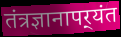
तंत्रज्ञानापर्यंत